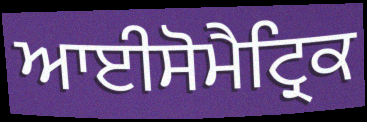
ਆਈਸੋਮੈਟ੍ਰਿਕ